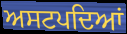
ਅਸਟਪਦਿਆਂ